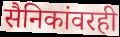
सैनिकांवरही